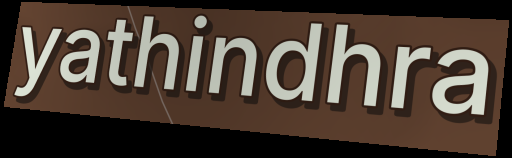
yathindhra